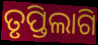
ତୃପ୍ତିଲାଗି